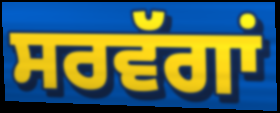
ਸਰਵੱਗਾਂ